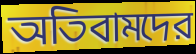
অতিবামদের